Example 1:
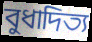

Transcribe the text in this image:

বুধাদিত্য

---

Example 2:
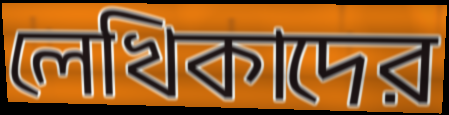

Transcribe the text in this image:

লেখিকাদের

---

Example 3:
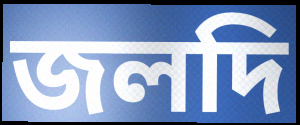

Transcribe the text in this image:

জলদি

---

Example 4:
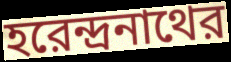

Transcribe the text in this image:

হরেন্দ্রনাথের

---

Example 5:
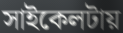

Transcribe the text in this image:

সাইকেলটায়